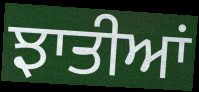
ਝਾਤੀਆਂ